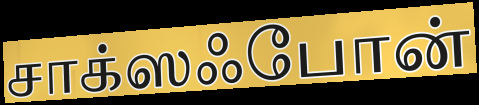
சாக்ஸஃபோன்